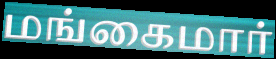
மங்கைமார்